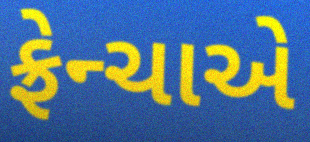
ફ્રેન્ચાએ